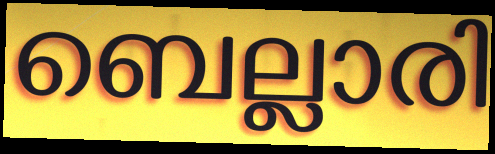
ബെല്ലാരി